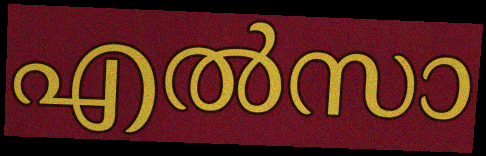
എൽസാ